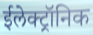
ईलेक्ट्रॉनिक